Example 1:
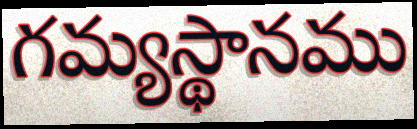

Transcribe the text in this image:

గమ్యస్థానము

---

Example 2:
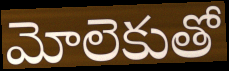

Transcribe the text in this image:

మోలెకుతో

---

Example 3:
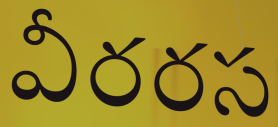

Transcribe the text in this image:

వీరరస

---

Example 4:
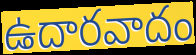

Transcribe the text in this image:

ఉదారవాదం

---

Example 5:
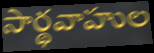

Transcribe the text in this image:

సార్థవాహుల